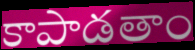
కాపాడతాం